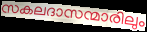
സകലദാസന്മാരിലും